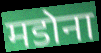
मडोना